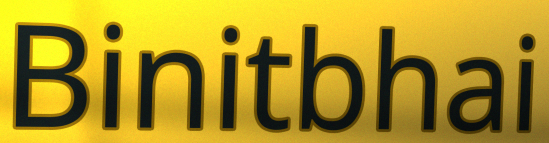
Binitbhai